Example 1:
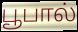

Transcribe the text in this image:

பூபால்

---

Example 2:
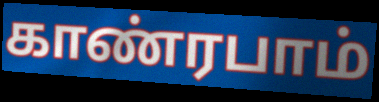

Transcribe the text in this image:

காண்ரபாம்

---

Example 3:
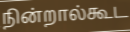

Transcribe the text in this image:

நின்றால்கூட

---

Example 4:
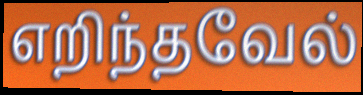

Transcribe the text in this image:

எறிந்தவேல்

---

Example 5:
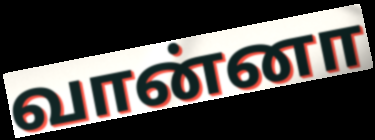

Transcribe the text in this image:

வான்னா